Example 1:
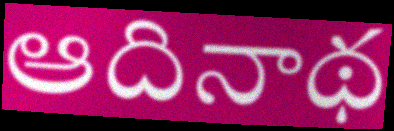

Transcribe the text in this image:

ఆదినాథ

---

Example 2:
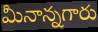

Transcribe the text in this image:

మీనాన్నగారు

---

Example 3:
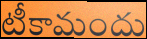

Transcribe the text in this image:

టీకామందు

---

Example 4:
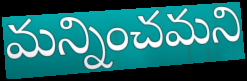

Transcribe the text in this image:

మన్నించమని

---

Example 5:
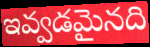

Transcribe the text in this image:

ఇవ్వడమైనది